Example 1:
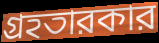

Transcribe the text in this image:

গ্রহতারকার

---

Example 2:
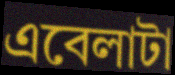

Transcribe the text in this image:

এবেলাটা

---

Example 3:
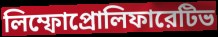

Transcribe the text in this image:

লিম্ফোপ্রোলিফারেটিভ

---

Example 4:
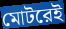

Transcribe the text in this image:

মোটরেই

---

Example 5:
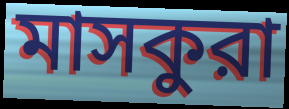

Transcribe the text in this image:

মাসকুরা